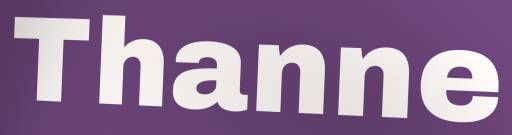
Thanne